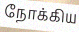
நோக்கிய